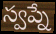
స్వప్నే